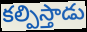
కల్పిస్తాడు